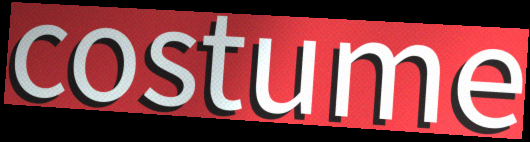
costume